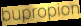
bupropion